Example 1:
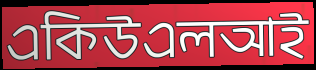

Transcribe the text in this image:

একিউএলআই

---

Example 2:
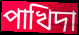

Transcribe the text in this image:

পাখিদা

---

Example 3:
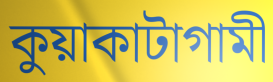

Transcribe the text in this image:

কুয়াকাটাগামী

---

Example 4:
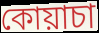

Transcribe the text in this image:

কোয়াচা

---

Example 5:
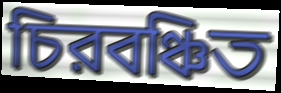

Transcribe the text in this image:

চিরবঞ্চিত